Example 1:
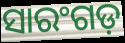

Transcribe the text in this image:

ସାରଂଗଡ଼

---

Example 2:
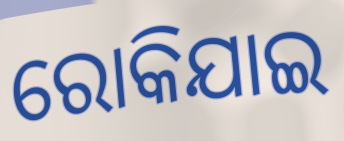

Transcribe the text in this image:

ରୋକିଯାଇ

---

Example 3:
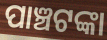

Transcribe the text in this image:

ପାଞ୍ଚଟଙ୍କା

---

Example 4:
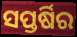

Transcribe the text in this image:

ସପ୍ତର୍ଷିର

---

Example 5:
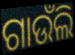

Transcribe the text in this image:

ଗାଉଁଲି